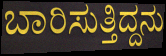
ಬಾರಿಸುತ್ತಿದ್ದನು